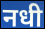
नधी